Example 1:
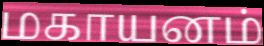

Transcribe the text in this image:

மகாயனம்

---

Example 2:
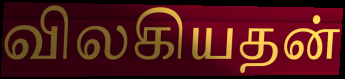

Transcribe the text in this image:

விலகியதன்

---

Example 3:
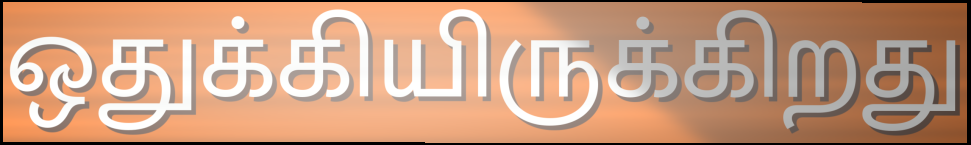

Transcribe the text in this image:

ஒதுக்கியிருக்கிறது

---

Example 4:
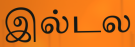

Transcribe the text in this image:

இல்டல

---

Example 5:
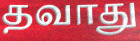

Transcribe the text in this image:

தவாது